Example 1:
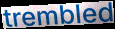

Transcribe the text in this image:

trembled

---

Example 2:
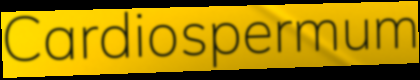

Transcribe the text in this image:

Cardiospermum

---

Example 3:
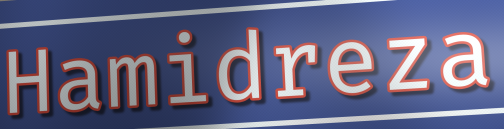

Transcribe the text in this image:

Hamidreza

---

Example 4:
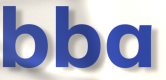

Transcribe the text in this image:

bba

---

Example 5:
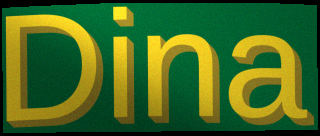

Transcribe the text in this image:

Dina